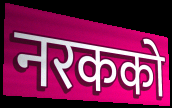
नरकको